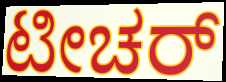
ಟೀಚರ್